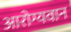
आरोग्यवान